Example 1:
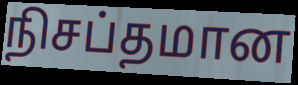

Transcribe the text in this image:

நிசப்தமான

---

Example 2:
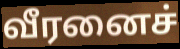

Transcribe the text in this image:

வீரனைச்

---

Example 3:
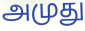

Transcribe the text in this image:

அமுது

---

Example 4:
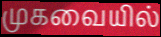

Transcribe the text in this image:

முகவையில்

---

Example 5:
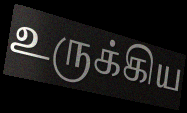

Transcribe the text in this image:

உருக்கிய